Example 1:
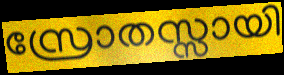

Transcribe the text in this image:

സ്രോതസ്സായി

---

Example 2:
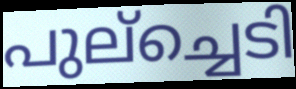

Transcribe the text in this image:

പുല്ച്ചെടി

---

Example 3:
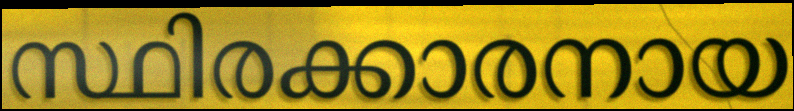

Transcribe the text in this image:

സ്ഥിരക്കാരനായ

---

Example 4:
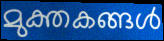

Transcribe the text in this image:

മുക്തകങ്ങൾ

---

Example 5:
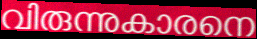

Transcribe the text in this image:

വിരുന്നുകാരനെ